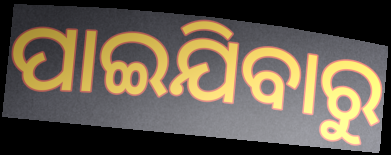
ପାଇଯିବାରୁ